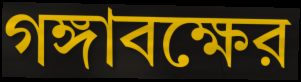
গঙ্গাবক্ষের